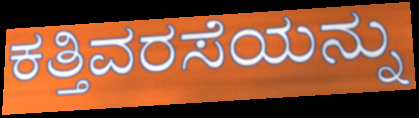
ಕತ್ತಿವರಸೆಯನ್ನು